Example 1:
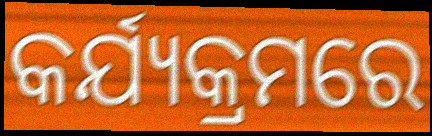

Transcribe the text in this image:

କର୍ଯ୍ୟକ୍ରମରେ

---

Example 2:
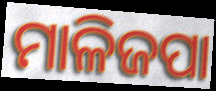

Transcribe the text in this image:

ମାଳିଜପା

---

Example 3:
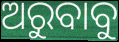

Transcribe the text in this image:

ଅରୁବାବୁ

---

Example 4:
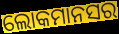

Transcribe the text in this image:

ଲୋକମାନସର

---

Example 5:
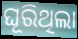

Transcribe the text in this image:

ଘୂରିଥିଲା